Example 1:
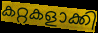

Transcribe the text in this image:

കറ്റകളാക്കി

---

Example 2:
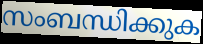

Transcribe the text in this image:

സംബന്ധിക്കുക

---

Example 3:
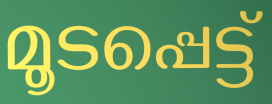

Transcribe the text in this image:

മൂടപ്പെട്ട്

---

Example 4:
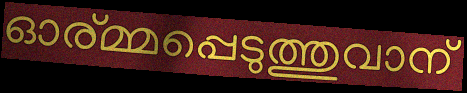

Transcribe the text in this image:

ഓര്മ്മപ്പെടുത്തുവാന്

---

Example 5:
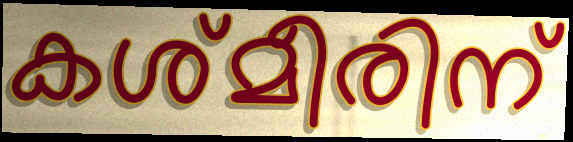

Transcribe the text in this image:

കശ്മീരിന്